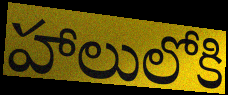
హాలులోకి